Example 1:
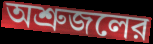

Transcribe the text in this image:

অশ্রুজলের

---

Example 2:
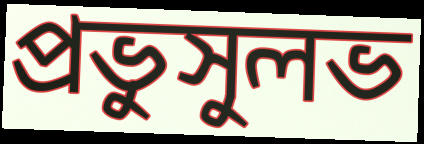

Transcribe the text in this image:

প্রভুসুলভ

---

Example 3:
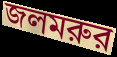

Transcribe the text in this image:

জলমরুর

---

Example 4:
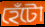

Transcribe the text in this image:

হেঁটো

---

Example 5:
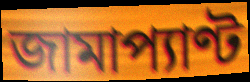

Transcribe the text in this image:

জামাপ্যাণ্ট